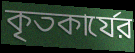
কৃতকার্যের